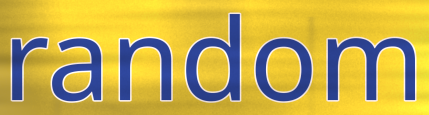
random